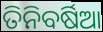
ତିନିବର୍ଷିଆ